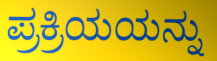
ಪ್ರಕ್ರಿಯಯನ್ನು